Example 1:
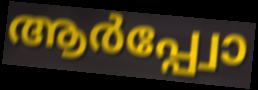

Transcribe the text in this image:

ആർപ്പ്വോ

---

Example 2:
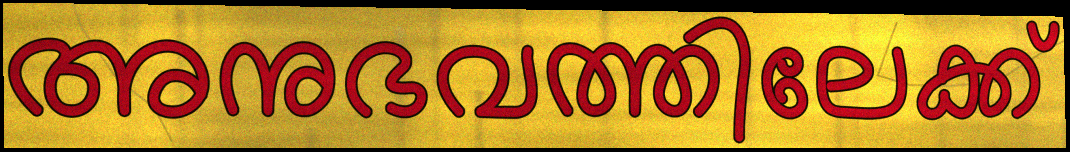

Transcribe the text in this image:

അനുഭവത്തിലേക്ക്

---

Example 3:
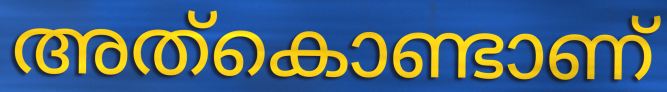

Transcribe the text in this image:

അത്കൊണ്ടാണ്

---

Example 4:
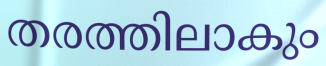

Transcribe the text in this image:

തരത്തിലാകും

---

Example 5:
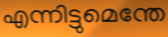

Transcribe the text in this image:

എന്നിട്ടുമെന്തേ